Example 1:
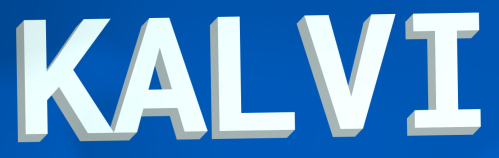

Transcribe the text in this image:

KALVI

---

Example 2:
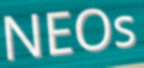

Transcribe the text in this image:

NEOs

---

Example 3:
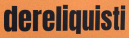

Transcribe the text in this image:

dereliquisti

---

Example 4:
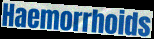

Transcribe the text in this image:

Haemorrhoids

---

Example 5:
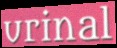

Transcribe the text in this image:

urinal